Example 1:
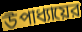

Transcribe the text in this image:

উপাধ্যায়ের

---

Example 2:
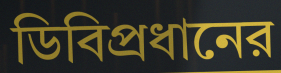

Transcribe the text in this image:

ডিবিপ্রধানের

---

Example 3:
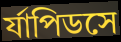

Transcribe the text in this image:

র্যাপিডসে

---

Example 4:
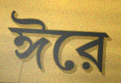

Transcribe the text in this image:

ঈরে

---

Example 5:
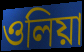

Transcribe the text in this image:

ওলিয়া